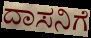
ದಾಸನಿಗೆ